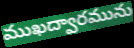
ముఖద్వారమును